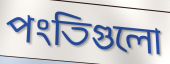
পংতিগুলো